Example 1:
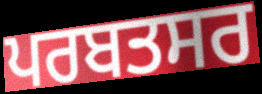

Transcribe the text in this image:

ਪਰਬਤਸਰ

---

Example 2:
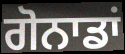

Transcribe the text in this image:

ਗੋਨਾਡਾਂ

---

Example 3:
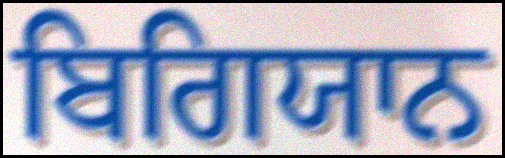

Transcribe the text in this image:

ਬਿਗਿਯਾਨ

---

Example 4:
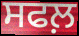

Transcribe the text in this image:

ਸਫਲ਼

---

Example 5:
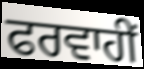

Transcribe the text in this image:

ਫਰਵਾਹੀਂ